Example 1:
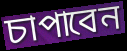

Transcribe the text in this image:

চাপাবেন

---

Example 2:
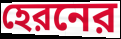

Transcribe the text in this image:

হেরনের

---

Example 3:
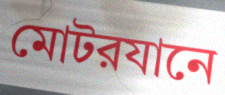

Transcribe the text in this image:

মোটরযানে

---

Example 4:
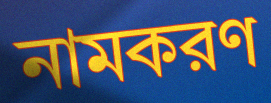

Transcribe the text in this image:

নামকরণ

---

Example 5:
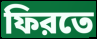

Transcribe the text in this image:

ফিরতে